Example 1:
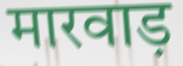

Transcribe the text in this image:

मारवाड़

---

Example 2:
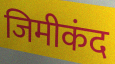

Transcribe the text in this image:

जिमीकंद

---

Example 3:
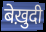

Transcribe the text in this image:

बेख़ुदी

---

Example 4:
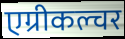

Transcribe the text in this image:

एग्रीकल्चर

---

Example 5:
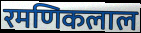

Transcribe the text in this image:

रमणिकलाल